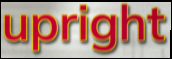
upright